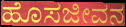
ಹೊಸಜೀವನ